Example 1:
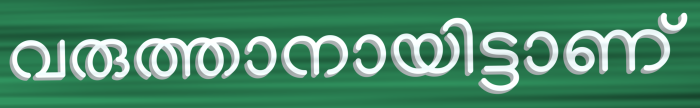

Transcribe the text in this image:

വരുത്താനായിട്ടാണ്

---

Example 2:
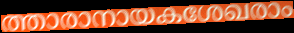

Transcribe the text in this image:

ത്താരാനായകശേഖരാം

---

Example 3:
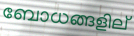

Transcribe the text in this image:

ബോധങ്ങളില്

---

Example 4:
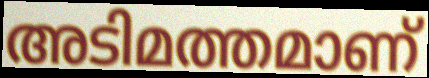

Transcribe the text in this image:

അടിമത്തമാണ്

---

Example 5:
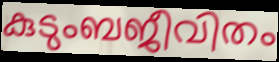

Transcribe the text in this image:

കുടുംബജീവിതം